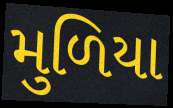
મુળિયા